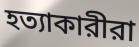
হত্যাকারীরা